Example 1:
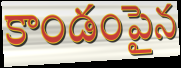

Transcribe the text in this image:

కాండంపైన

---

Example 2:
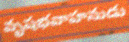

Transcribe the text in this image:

వృషభవాహనుడు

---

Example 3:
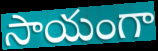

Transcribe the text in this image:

సాయంగా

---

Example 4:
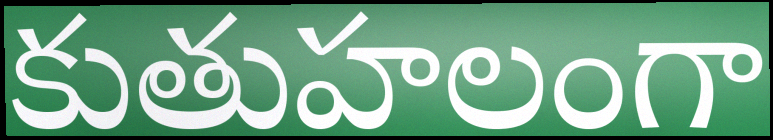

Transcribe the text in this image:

కుతుహలంగా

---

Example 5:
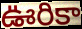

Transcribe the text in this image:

ఊరికా